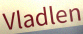
Vladlen